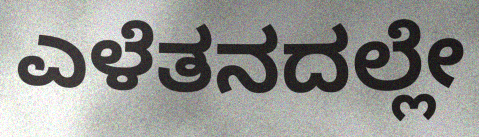
ಎಳೆತನದಲ್ಲೇ